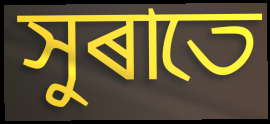
সুৰাতে